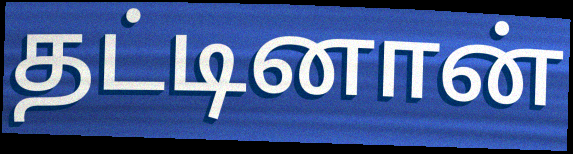
தட்டினான்